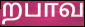
றபாவ